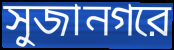
সুজানগরে